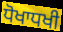
ਧੋਖਾਧਖੀ